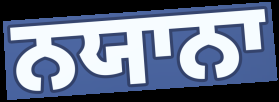
ਨਯਾਨਾ